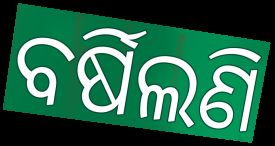
ବର୍ଷିଲଣି